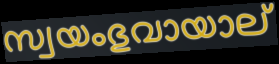
സ്വയംഭുവായാല്